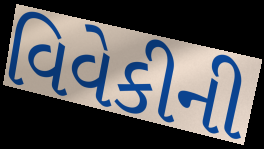
વિવેકીની